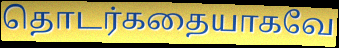
தொடர்கதையாகவே